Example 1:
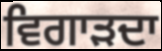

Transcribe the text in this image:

ਵਿਗਾੜਦਾ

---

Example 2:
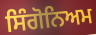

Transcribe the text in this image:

ਸਿੰਗੋਨਿਅਮ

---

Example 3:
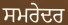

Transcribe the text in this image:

ਸਮਰੇਦਰ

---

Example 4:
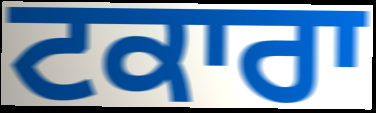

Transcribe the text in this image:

ਟਕਾਰਾ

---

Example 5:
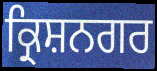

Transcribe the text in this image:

ਕ੍ਰਿਸ਼ਨਗਰ